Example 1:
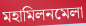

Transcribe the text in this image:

মহামিলনমেলা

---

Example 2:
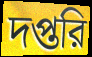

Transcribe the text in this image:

দপ্তরি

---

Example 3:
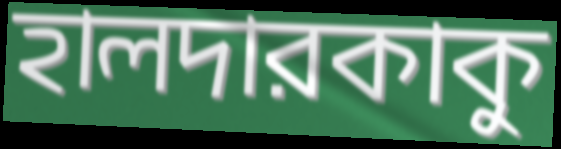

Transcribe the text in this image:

হালদারকাকু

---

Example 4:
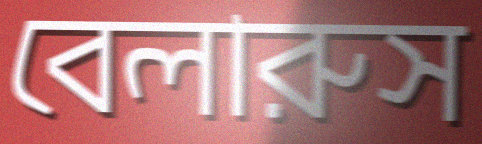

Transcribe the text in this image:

বেলারুস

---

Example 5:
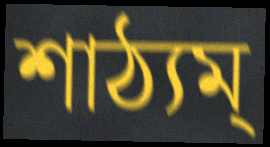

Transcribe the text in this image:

শাঠ্যম্